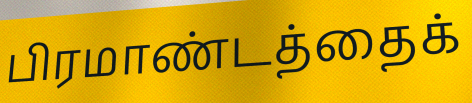
பிரமாண்டத்தைக்